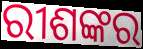
ରୀଶଙ୍କର